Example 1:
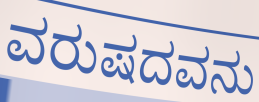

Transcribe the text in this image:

ವರುಷದವನು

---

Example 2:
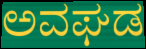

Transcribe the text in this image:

ಅವಘಡ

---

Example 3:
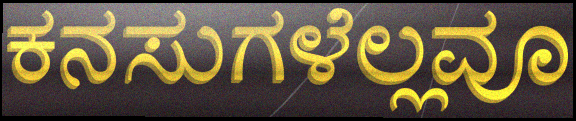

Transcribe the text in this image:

ಕನಸುಗಳೆಲ್ಲವೂ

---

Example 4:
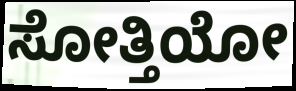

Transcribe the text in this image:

ಸೋತ್ತಿಯೋ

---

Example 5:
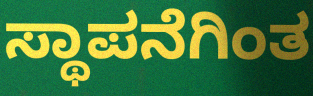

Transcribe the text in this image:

ಸ್ಥಾಪನೆಗಿಂತ